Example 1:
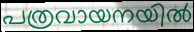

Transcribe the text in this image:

പത്രവായനയിൽ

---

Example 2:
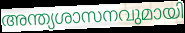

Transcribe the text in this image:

അന്ത്യശാസനവുമായി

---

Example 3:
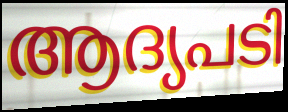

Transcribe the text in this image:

ആദ്യപടി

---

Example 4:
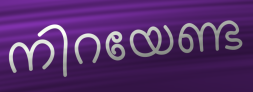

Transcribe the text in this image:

നിറയേണ്ട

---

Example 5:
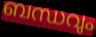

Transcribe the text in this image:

ബന്ധവും